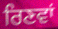
ਰਿਣਵਾਂ